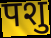
पशु